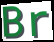
Br